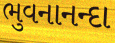
ભુવનાનન્દા